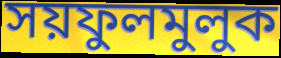
সয়ফুলমুলুক